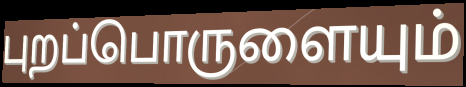
புறப்பொருளையும்